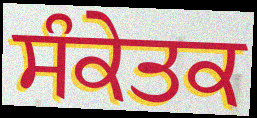
ਸੰਕੇਤਕ